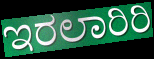
ಇರಲಾರಿರಿ